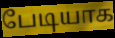
பேடியாக